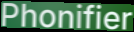
Phonifier